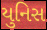
યુનિસ